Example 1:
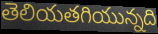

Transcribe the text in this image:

తెలియతగియున్నది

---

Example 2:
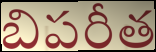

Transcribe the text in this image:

బిపరీత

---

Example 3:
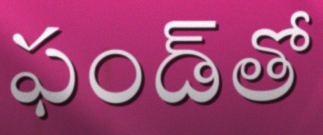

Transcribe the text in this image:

ఫండ్‌తో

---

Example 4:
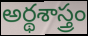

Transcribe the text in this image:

అర్థశాస్త్రం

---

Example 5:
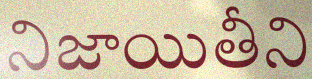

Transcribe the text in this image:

నిజాయితీని